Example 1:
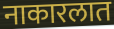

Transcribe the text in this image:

नाकारलात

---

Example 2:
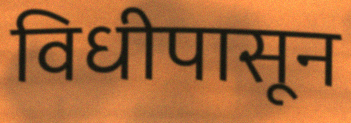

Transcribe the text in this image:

विधीपासून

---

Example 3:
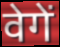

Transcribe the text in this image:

वेगें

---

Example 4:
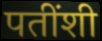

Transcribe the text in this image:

पतींशी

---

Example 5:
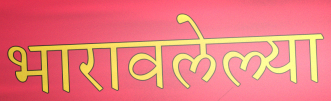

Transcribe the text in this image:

भारावलेल्या